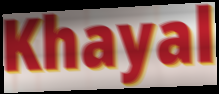
Khayal